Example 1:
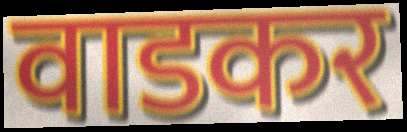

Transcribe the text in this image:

वाडकर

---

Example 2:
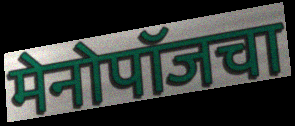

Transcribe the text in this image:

मेनोपॉजचा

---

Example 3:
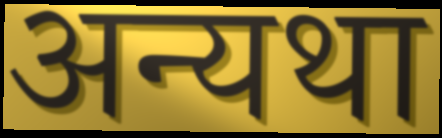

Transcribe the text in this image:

अन्यथा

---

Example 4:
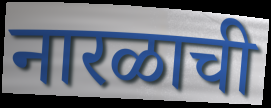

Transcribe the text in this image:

नारळाची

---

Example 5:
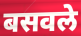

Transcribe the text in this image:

बसवले